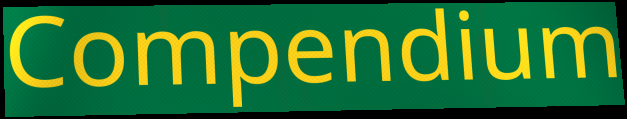
Compendium